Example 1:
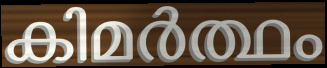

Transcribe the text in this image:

കിമർത്ഥം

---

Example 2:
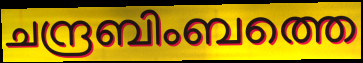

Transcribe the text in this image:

ചന്ദ്രബിംബത്തെ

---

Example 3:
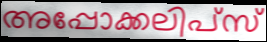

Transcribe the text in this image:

അപ്പോക്കലിപ്സ്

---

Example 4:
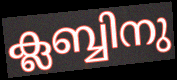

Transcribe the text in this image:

ക്ലബ്ബിനു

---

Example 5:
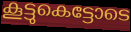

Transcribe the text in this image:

കൂട്ടുകെട്ടോടെ